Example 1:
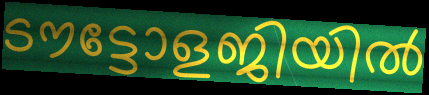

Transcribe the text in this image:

ടൗട്ടോളജിയിൽ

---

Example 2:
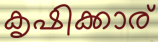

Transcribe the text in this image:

കൃഷിക്കാര്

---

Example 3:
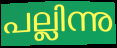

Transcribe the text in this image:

പല്ലിന്നു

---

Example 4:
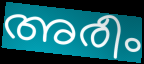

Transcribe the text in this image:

അരീം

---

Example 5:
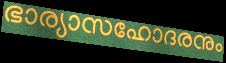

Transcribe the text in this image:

ഭാര്യാസഹോദരനും